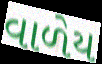
વાળેય